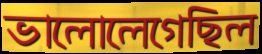
ভালোলেগেছিল